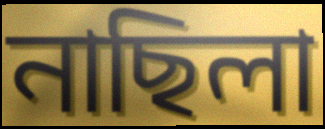
নাছিলা